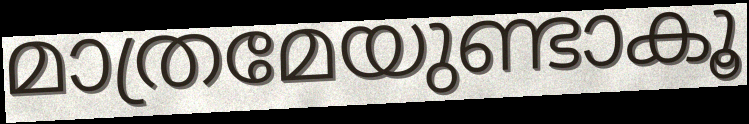
മാത്രമേയുണ്ടാകൂ